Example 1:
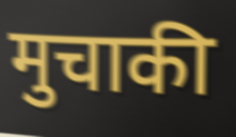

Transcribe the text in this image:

मुचाकी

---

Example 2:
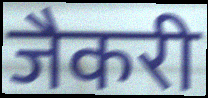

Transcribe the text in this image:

जैकरी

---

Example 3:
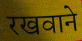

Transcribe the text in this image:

रखवाने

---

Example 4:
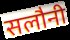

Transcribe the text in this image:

सलौनी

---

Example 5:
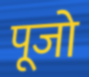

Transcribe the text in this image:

पूजो